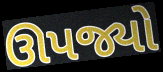
ઊપજ્યો